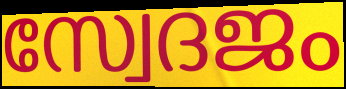
സ്വേദജം